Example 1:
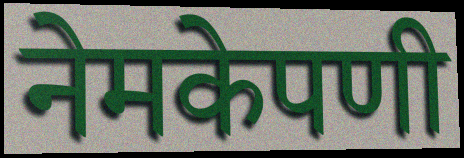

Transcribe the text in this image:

नेमकेपणी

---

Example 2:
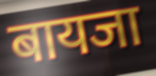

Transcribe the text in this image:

बायजा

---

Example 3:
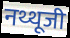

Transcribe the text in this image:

नथ्थूजी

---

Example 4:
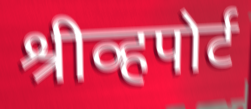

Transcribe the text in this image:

श्रीव्हपोर्ट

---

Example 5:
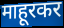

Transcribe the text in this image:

माहूरकर